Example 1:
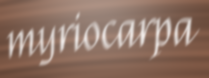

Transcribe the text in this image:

myriocarpa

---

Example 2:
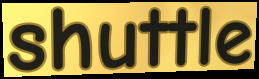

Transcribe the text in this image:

shuttle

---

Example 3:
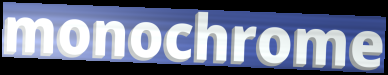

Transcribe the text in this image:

monochrome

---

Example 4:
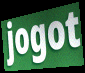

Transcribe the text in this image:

jogot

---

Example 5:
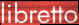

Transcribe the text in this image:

libretto